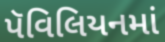
પૅવિલિયનમાં